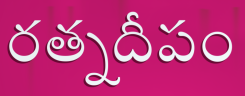
రత్నదీపం